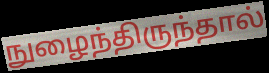
நுழைந்திருந்தால்